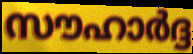
സൗഹാർദ്ദ